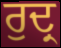
ਰੁਦ੍ਰ